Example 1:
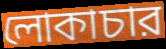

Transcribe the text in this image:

লোকাচার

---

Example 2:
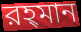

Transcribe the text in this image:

রহ্‌মান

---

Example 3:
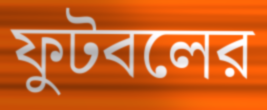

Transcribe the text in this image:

ফুটবলের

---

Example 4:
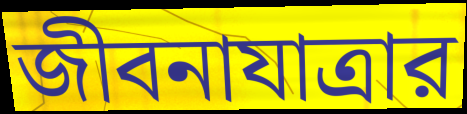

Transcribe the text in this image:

জীবনাযাত্রার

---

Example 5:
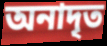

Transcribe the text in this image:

অনাদৃত